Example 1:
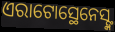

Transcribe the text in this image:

ଏରାଟୋସ୍ଥେନେସ୍ଙ୍କ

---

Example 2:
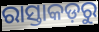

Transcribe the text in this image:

ରାସ୍ତାକଡ଼ରୁ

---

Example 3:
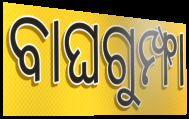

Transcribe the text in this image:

ବାଘଗୁମ୍ଫା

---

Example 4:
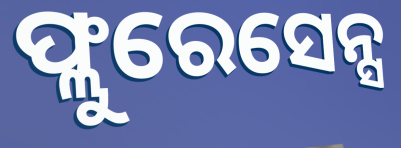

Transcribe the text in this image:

ଫ୍ଲୁରେସେନ୍ସ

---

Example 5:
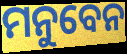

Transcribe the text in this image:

ମନୁବେନ